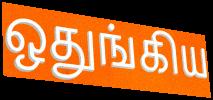
ஒதுங்கிய